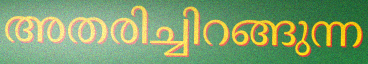
അതരിച്ചിറങ്ങുന്ന